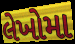
લેખોમા